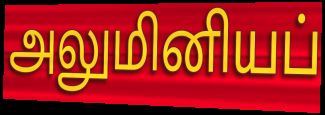
அலுமினியப்